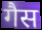
गैस